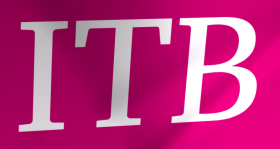
ITB